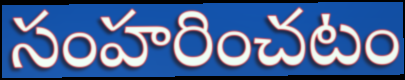
సంహరించటం